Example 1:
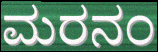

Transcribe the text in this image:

ಮರನಂ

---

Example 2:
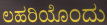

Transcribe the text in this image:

ಲಹರಿಯೊಂದು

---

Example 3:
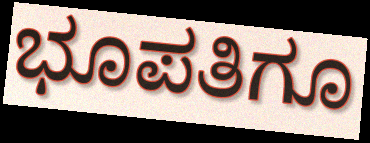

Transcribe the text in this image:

ಭೂಪತಿಗೂ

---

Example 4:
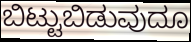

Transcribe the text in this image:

ಬಿಟ್ಟುಬಿಡುವುದೂ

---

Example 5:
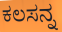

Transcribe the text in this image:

ಕಲಸನ್ನ